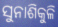
ସୁନାଶିକୁଳି